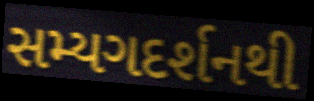
સમ્યગદર્શનથી